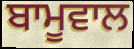
ਬਾਮੂਵਾਲ